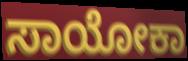
ಸಾಯೋಕಾ